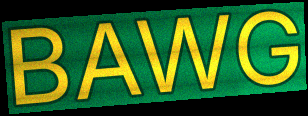
BAWG